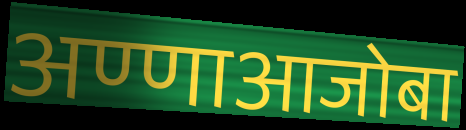
अण्णाआजोबा